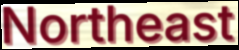
Northeast